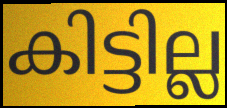
കിട്ടില്ല